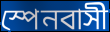
স্পেনবাসী